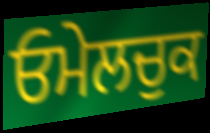
ਓਮੇਲਚੁਕ